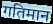
गतिमान